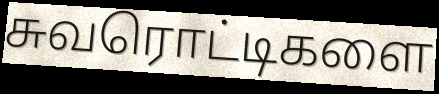
சுவரொட்டிகளை